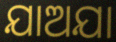
ଯାଅଯା